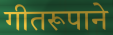
गीतरूपाने